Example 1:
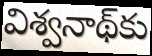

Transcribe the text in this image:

విశ్వనాథ్‌కు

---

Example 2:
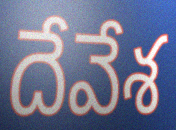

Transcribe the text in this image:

దేవేశ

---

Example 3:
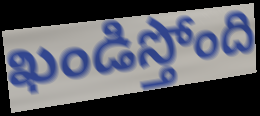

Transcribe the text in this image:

ఖండిస్తోంది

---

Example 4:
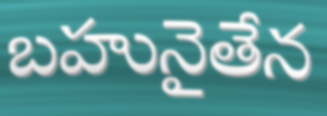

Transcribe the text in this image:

బహునైతేన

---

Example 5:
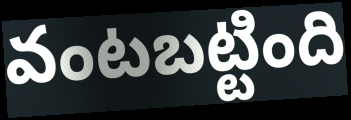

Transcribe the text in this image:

వంటబట్టింది